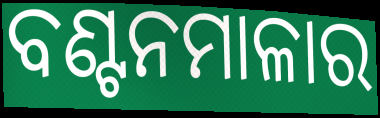
ବଣ୍ଟନମାଳାର